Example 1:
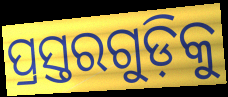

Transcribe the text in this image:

ପ୍ରସ୍ତରଗୁଡ଼ିକୁ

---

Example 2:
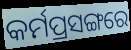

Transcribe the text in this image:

କର୍ମପ୍ରସଙ୍ଗରେ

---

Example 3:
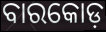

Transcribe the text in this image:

ବାରକୋଡ଼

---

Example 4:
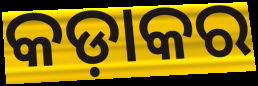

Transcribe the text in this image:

କଡ଼ାକର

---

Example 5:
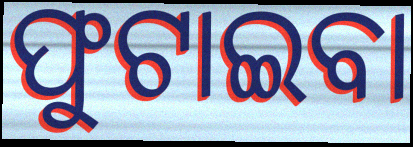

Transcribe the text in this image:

ଫୁଟାଇବା